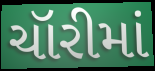
ચૉરીમાં